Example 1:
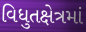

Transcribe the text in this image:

વિધુતક્ષેત્રમાં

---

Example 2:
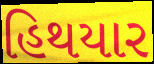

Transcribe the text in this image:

હિથયાર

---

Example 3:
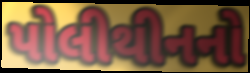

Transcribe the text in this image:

પોલીથીનનો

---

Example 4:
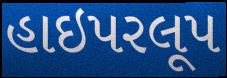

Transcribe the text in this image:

હાઇપરલૂપ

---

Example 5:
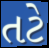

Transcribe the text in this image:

તટે